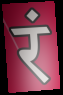
रं